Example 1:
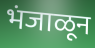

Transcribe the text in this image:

भंजाळून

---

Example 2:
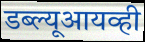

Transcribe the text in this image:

डब्ल्यूआयव्ही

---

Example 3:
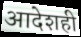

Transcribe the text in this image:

आदेशही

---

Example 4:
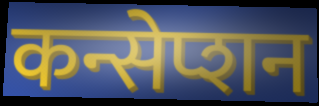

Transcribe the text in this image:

कन्सेप्शन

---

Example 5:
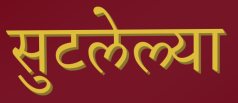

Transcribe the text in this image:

सुटलेल्या